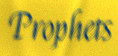
Prophets